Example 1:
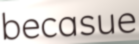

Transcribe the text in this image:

becasue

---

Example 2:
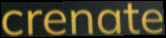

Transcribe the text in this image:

crenate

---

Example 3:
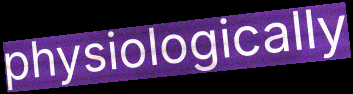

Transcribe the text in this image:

physiologically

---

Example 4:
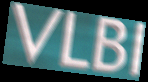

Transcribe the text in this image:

VLBI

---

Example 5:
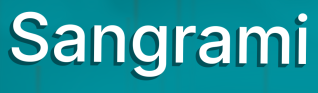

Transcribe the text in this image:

Sangrami